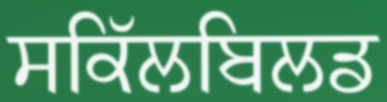
ਸਕਿੱਲਬਿਲਡ